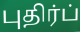
புதிர்ப்